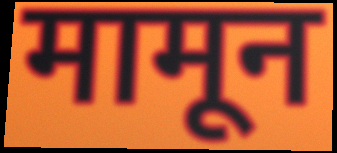
मामून